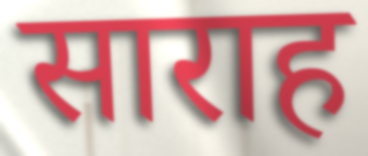
साराह